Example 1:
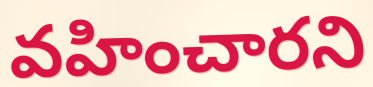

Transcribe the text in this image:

వహించారని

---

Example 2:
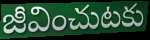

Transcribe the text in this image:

జీవించుటకు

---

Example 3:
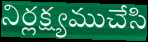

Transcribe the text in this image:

నిర్లక్ష్యముచేసి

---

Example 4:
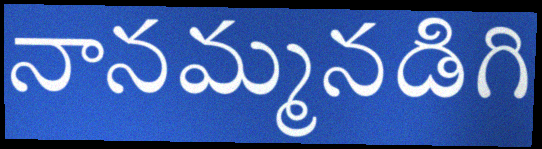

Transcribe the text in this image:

నానమ్మనడిగి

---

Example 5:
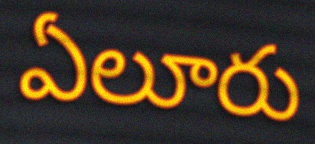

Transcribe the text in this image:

ఏలూరు